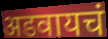
अडवायचं